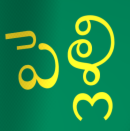
పెళ్లి